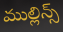
ముల్లిన్స్